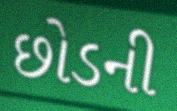
છોડની